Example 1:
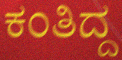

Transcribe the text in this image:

ಕಂತಿದ್ದ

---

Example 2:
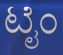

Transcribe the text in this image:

ಟೈಂ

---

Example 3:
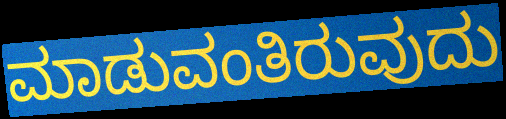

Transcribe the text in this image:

ಮಾಡುವಂತಿರುವುದು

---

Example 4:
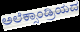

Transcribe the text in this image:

ಅಲೆಕ್ಸಾಂಡ್ರಿಯದ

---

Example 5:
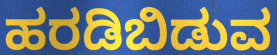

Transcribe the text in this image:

ಹರಡಿಬಿಡುವ